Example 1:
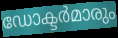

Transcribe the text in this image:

ഡോക്ടർമാരും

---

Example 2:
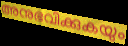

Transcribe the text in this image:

അനുഭവിക്കുകയും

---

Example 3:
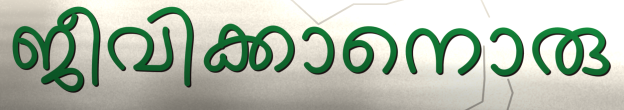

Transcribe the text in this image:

ജീവിക്കാനൊരു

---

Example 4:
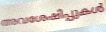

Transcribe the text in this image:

അവശേഷിപ്പുകൾ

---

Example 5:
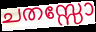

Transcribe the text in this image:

ചതസ്സോ